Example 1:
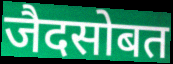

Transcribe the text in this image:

जैदसोबत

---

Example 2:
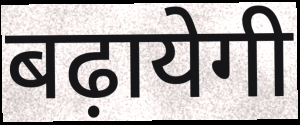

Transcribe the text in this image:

बढ़ायेगी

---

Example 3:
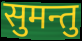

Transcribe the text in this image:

सुमन्तु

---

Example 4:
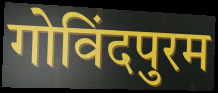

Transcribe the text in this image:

गोविंदपुरम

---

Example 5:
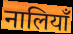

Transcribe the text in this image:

नालियाँ